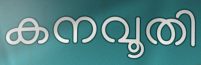
കനവൂതി